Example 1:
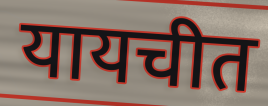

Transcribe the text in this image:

यायचीत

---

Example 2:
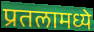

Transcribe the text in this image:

प्रतलामध्ये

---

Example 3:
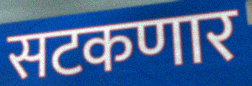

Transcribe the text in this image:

सटकणार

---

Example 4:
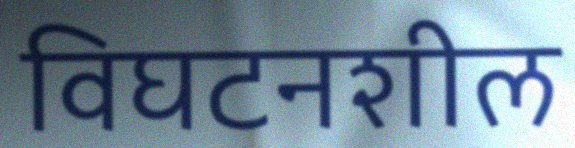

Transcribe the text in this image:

विघटनशील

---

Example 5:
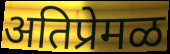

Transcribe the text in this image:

अतिप्रेमळ